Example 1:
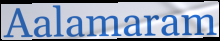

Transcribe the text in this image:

Aalamaram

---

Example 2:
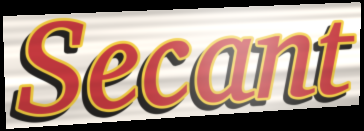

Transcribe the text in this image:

Secant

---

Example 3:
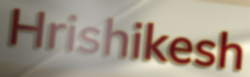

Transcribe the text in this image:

Hrishikesh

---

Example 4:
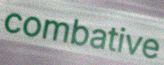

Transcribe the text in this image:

combative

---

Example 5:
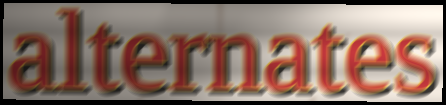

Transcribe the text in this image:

alternates